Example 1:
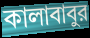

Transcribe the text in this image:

কালাবাবুর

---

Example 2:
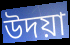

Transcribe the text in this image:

উদয়া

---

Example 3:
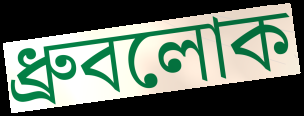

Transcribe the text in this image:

ধ্রুবলোক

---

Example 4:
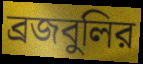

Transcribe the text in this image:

ব্রজবুলির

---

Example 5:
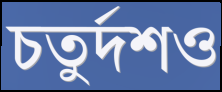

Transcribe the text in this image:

চতুর্দশও